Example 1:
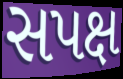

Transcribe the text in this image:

સપક્ષ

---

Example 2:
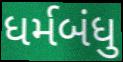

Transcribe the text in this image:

ધર્મબંધુ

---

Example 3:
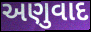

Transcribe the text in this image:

અણુવાદ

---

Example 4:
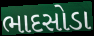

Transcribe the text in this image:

ભાદસોડા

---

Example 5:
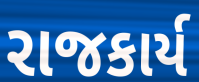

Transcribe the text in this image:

રાજકાર્ય